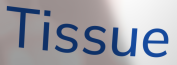
Tissue